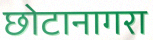
छोटानागरा